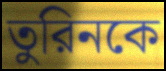
তুরিনকে